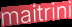
maitrini